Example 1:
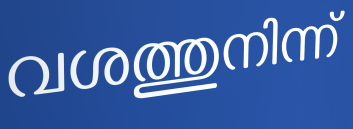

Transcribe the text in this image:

വശത്തുനിന്ന്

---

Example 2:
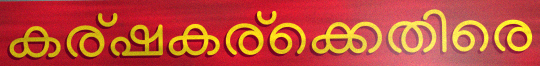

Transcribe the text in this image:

കര്ഷകര്ക്കെതിരെ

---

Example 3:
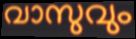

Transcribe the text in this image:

വാസുവും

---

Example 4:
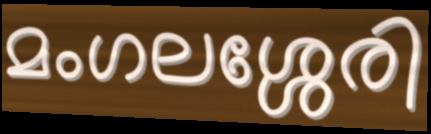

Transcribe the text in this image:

മംഗലശ്ശേരി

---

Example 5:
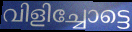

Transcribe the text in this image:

വിളിച്ചോട്ടെ